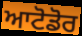
ਆਟੋਡੋਰ